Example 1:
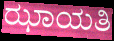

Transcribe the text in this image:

ಝಾಯತಿ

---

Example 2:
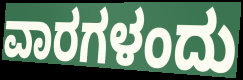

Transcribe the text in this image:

ವಾರಗಳಂದು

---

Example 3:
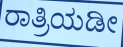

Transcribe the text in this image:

ರಾತ್ರಿಯಡೀ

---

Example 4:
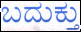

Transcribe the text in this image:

ಬದುಕ್ತು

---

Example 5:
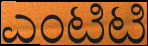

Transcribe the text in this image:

ಎಂಟಿಟಿ